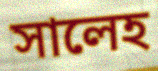
সালেহ